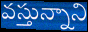
వస్తున్నాని